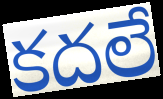
కదలే